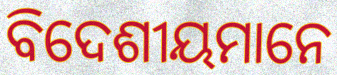
ବିଦେଶୀୟମାନେ